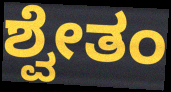
ಶ್ವೇತಂ